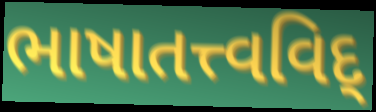
ભાષાતત્ત્વવિદ્